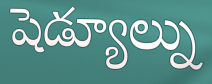
షెడ్యూల్ను